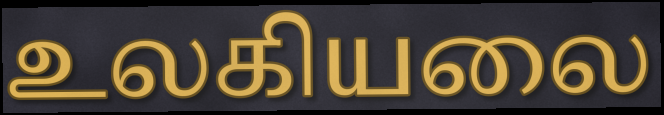
உலகியலை